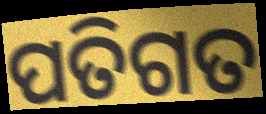
ପତିଗତ